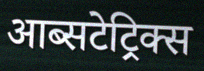
आब्सटेट्रिक्स